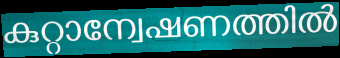
കുറ്റാന്വേഷണത്തിൽ